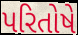
પરિતોષે